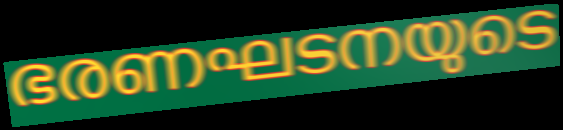
ഭരണഘടനയുടെ